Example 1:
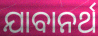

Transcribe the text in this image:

ଯାବାନର୍ଥ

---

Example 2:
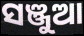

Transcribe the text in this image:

ସଞ୍ଜୁଆ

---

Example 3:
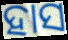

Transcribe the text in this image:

ହାସ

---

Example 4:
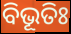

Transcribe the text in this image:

ବିଭୂତିଃ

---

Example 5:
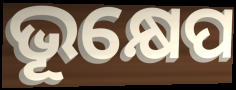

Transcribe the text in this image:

ଭୂକ୍ଷେପ